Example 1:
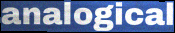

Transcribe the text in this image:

analogical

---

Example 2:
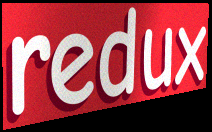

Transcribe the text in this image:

redux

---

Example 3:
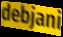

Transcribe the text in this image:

debjani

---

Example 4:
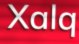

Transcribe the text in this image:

Xalq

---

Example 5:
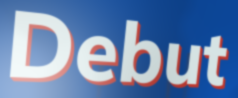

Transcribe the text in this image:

Debut